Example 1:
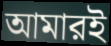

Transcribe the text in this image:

আমারই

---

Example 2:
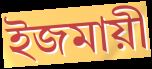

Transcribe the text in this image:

ইজমায়ী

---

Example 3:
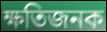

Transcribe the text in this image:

ক্ষতিজনক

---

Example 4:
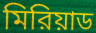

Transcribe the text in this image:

মিরিয়াড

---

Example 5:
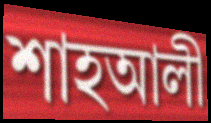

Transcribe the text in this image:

শাহআলী